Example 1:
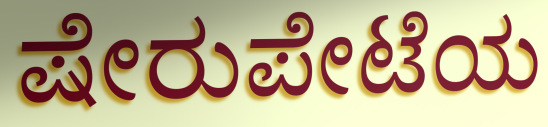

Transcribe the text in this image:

ಷೇರುಪೇಟೆಯ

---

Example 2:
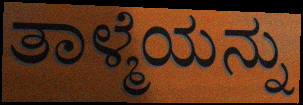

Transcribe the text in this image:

ತಾಳ್ಮೆಯನ್ನು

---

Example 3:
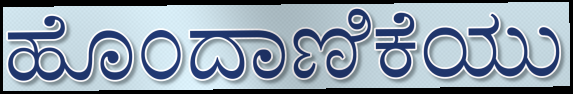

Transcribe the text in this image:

ಹೊಂದಾಣಿಕೆಯು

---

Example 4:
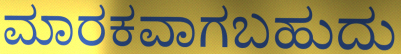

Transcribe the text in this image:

ಮಾರಕವಾಗಬಹುದು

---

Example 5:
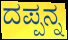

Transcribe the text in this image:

ದಪ್ಪನ್ನ